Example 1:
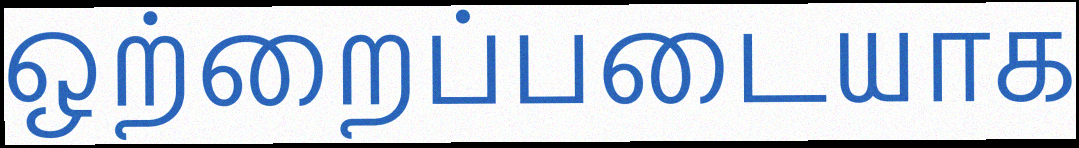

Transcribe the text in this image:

ஒற்றைப்படையாக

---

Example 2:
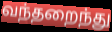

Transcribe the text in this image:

வந்தறைந்து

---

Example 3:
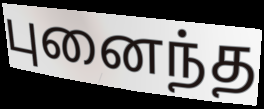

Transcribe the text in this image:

புனைந்த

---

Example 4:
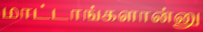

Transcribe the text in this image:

மாட்டாங்களான்னு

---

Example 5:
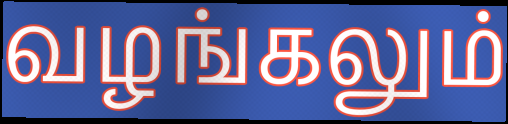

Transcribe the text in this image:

வழங்கலும்